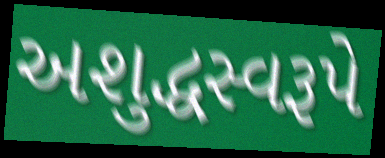
અશુદ્ધસ્વરૂપે